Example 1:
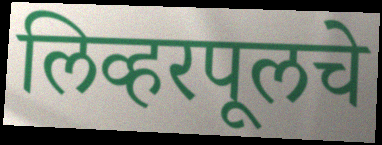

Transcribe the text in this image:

लिव्हरपूलचे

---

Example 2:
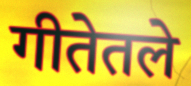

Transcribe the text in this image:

गीतेतले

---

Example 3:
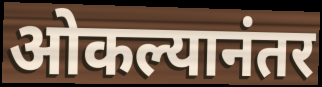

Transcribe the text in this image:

ओकल्यानंतर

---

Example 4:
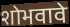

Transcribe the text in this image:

शोभवावे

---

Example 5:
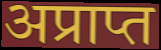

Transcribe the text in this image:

अप्राप्त